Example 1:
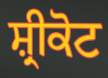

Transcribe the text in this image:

ਸ਼੍ਰੀਕੋਟ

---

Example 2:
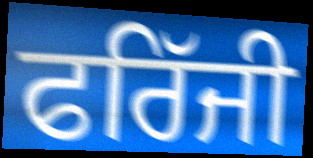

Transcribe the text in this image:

ਫਰਿੱਜੀ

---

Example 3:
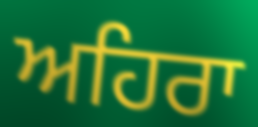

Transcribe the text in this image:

ਅਹਿਰਾ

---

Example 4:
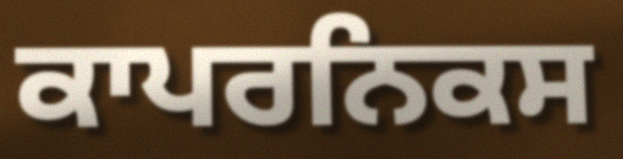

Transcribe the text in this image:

ਕਾਪਰਨਿਕਸ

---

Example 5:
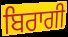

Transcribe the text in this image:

ਬਿਰਾਗੀ